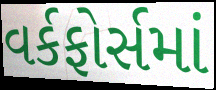
વર્કફોર્સમાં